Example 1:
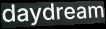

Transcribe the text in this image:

daydream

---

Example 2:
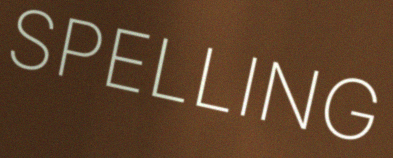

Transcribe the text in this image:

SPELLING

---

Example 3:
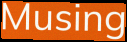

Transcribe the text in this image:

Musing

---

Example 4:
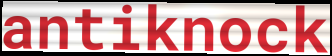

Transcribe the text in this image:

antiknock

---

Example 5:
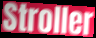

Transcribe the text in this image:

Stroller